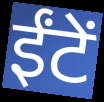
ईंटें